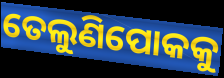
ତେଲୁଣିପୋକକୁ